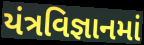
યંત્રવિજ્ઞાનમાં